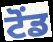
ਟੋਂਡ